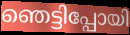
ഞെട്ടിപ്പോയി